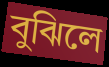
বুঝিলে